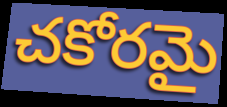
చకోరమై